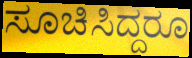
ಸೂಚಿಸಿದ್ದರೂ